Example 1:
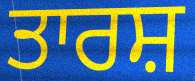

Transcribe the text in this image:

ਤਾਰਸ਼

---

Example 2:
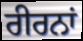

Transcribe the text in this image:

ਰੀਰਨਾਂ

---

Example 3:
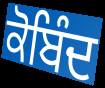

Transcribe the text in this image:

ਕੋਬਿੰਦ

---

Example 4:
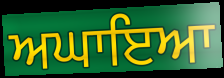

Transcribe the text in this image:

ਅਘਾਇਆ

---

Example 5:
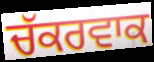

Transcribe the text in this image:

ਚੱਕਰਵਾਕ